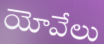
యోవేలు